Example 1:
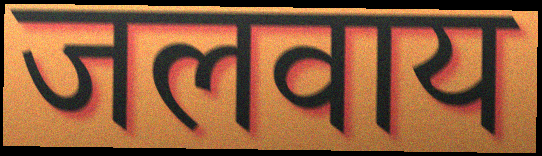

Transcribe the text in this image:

जलवाय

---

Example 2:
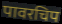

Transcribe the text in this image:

पावरचिप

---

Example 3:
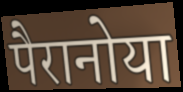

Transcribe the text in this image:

पैरानोया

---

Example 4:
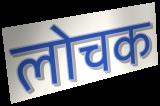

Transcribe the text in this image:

लोचक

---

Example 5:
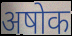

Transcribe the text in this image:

अषोक